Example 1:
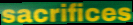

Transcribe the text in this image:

sacrifices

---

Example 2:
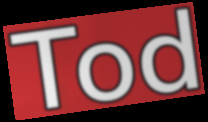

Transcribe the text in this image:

Tod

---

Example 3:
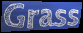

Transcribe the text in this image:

Grass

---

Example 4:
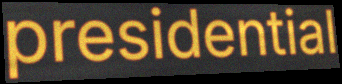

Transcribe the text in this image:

presidential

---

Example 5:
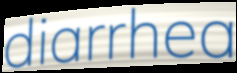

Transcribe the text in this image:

diarrhea